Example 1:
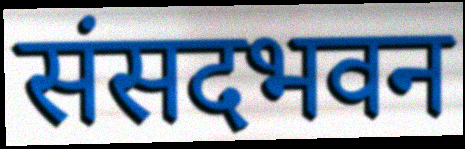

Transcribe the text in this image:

संसदभवन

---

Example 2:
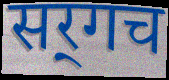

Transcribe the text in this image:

सर्गच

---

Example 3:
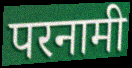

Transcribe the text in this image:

परनामी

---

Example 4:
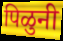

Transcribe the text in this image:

पिळुनी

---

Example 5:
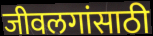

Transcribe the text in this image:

जीवलगांसाठी